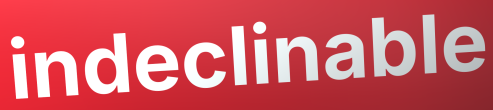
indeclinable